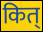
कित्